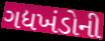
ગદ્યખંડોની